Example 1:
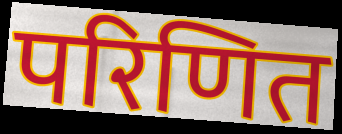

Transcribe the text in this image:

परिणित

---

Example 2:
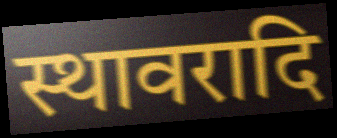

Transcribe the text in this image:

स्थावरादि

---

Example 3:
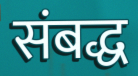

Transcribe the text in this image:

संबद्ध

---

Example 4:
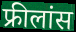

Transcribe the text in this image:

फ्रीलांस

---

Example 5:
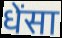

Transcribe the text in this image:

धेंसा